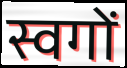
स्वगों